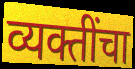
व्यक्तींचा